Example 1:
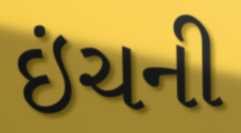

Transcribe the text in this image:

ઇંચની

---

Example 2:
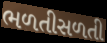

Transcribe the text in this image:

ભળતીસળતી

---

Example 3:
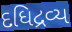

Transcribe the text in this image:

દધિદ્રવ્ય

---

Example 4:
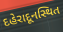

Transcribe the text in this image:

દહેરાદૂનસ્થિત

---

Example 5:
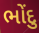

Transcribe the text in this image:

ભોંદુ